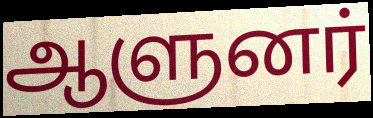
ஆளுனர்